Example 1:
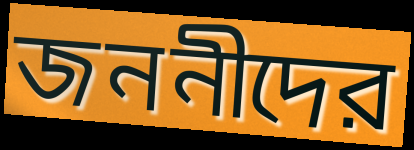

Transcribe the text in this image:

জননীদের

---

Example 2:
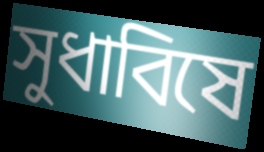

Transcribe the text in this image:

সুধাবিষে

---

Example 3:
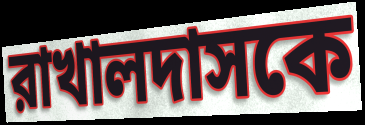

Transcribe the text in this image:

রাখালদাসকে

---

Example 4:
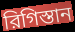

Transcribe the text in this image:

রিগিস্তান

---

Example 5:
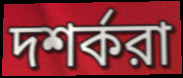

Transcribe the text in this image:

দশর্করা